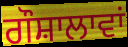
ਗੌਸ਼ਾਲਾਵਾਂ